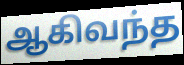
ஆகிவந்த